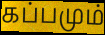
கப்பமும்